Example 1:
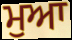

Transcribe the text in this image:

ਮੁਆ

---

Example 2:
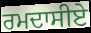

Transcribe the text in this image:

ਰਮਦਾਸੀਏ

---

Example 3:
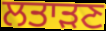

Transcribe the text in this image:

ਲਤਾੜਣ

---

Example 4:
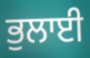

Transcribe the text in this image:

ਭੁਲਾਈ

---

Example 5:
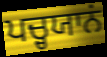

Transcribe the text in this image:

ਪਚ੍ਚਯਾਨਂ